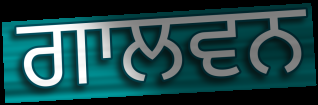
ਗਾਲਵਨ